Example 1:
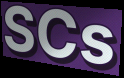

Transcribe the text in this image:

SCs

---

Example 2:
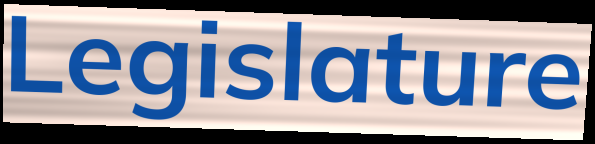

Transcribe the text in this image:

Legislature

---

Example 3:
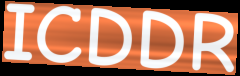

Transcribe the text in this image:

ICDDR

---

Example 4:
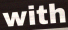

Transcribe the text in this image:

with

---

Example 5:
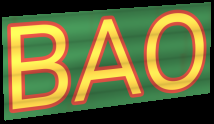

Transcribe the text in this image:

BAO